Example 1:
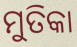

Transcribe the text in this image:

ମୁତିକା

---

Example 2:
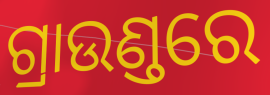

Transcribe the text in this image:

ଗ୍ରାଉଣ୍ଡରେ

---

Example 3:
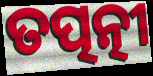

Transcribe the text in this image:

ତତ୍ପତ୍ନୀ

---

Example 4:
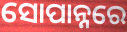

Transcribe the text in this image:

ସୋପାନ୍ନରେ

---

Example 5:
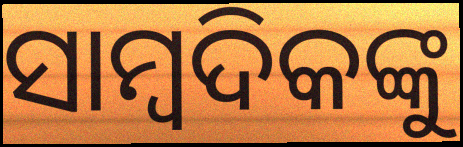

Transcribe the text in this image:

ସାମ୍ବଦିକଙ୍କୁ